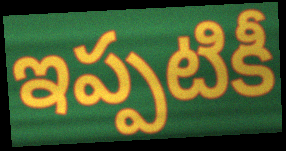
ఇప్పటికీ